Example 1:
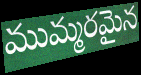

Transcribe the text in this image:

ముమ్మరమైన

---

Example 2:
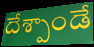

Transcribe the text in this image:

దేశ్పాండే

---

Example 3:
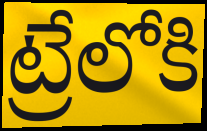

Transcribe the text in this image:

ట్రేలోకి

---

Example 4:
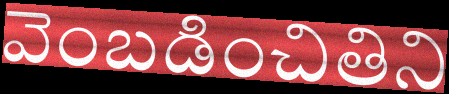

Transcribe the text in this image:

వెంబడించితిని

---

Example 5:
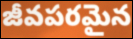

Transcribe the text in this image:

జీవపరమైన